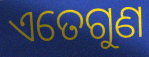
ଏତେଗୁଣ